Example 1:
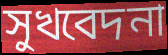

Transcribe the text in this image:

সুখবেদনা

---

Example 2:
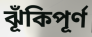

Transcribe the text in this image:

ঝূঁকিপূর্ণ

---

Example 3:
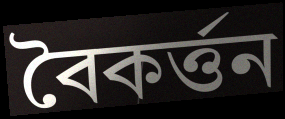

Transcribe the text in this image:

বৈকর্ত্তন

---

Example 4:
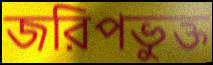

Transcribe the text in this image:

জরিপভুক্ত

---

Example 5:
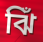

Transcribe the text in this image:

ঝিঁ